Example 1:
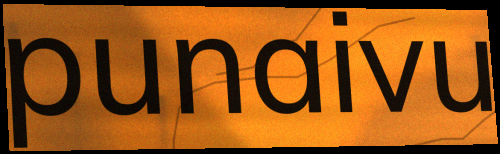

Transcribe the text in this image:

punaivu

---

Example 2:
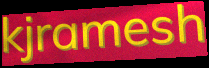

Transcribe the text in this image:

kjramesh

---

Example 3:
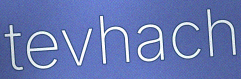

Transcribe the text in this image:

tevhach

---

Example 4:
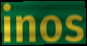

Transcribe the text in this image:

inos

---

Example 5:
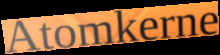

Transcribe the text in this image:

Atomkerne